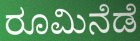
ರೂಮಿನೆಡೆ